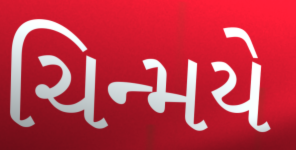
ચિન્મયે